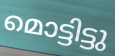
മൊട്ടിട്ടു